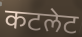
कटलेट